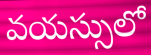
వయస్సులో